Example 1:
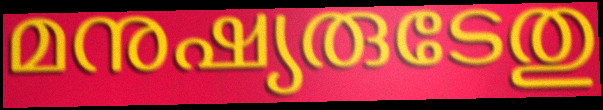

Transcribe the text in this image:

മനുഷ്യരുടേതു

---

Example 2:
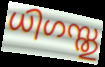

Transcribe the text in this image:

ധിഗസ്തു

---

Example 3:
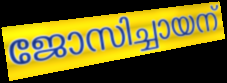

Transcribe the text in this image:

ജോസിച്ചായന്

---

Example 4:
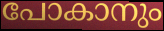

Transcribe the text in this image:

പോകാനും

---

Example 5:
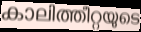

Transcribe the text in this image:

കാലിത്തീറ്റയുടെ